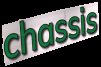
chassis